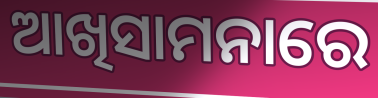
ଆଖିସାମନାରେ